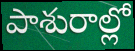
పాశురాల్లో